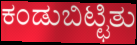
ಕಂಡುಬಿಟ್ಟಿತು